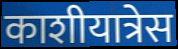
काशीयात्रेस